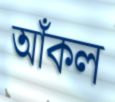
আঁকল